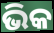
ଭିକ